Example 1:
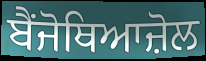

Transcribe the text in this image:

ਬੈਂਜੋਥਿਆਜ਼ੋਲ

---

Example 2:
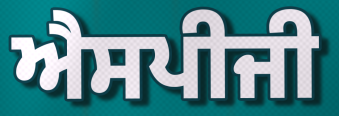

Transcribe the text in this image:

ਐਸਪੀਜੀ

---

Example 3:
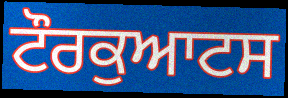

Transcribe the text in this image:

ਟੌਰਕੁਆਟਸ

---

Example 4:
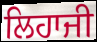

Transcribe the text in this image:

ਲਿਹਾਜੀ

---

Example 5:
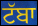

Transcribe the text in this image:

ਟੱਬਾ